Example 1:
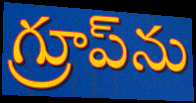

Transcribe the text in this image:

గ్రూప్‌ను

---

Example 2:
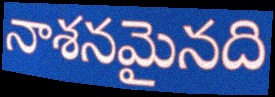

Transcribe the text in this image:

నాశనమైనది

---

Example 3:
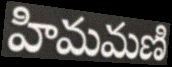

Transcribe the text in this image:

హిమమణి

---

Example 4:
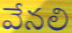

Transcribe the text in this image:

వేనలి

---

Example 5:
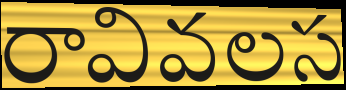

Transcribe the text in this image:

రావివలస